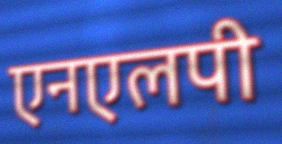
एनएलपी